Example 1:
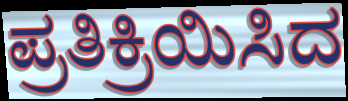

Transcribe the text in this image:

ಪ್ರತಿಕ್ರಿಯಿಸಿದ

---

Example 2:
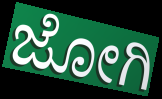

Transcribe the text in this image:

ಜೋಗಿ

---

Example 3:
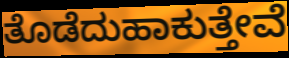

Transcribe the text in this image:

ತೊಡೆದುಹಾಕುತ್ತೇವೆ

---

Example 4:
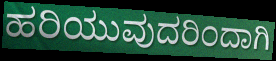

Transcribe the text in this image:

ಹರಿಯುವುದರಿಂದಾಗಿ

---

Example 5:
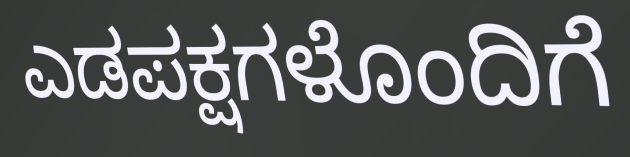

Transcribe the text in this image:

ಎಡಪಕ್ಷಗಳೊಂದಿಗೆ